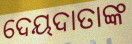
ଦେୟଦାତାଙ୍କ